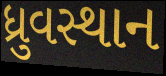
ધ્રુવસ્થાન